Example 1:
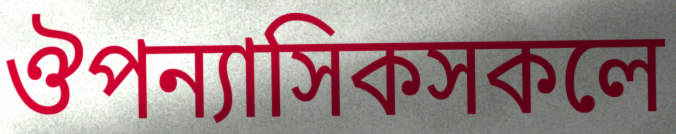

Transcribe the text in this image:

ঔপন্যাসিকসকলে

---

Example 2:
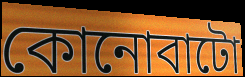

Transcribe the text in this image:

কোনোবাটো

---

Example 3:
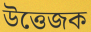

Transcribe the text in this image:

উত্তেজক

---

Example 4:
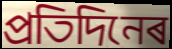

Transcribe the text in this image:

প্ৰতিদিনেৰ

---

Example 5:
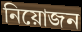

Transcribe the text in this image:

নিয়োজন